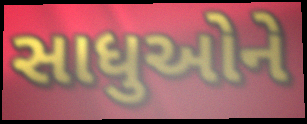
સાધુઓને